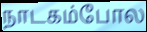
நாடகம்போல